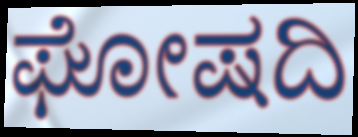
ಘೋಷದಿ